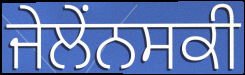
ਜੇਲੇਂਨਸਕੀ